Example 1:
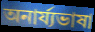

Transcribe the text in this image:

অনার্য্যভাষা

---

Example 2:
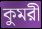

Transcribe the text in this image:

কুমরী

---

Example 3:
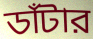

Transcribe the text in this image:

ডাঁটার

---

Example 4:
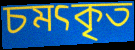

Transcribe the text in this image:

চমৎকৃত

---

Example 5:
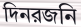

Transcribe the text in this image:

দিনরজনি